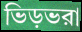
ভিড়ভরা